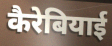
कैरेबियाई